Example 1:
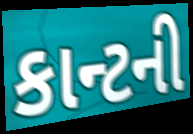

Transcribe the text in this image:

કાન્ટની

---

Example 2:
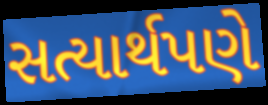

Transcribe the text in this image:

સત્યાર્થપણે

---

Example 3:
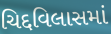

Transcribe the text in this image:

ચિદ્દવિલાસમાં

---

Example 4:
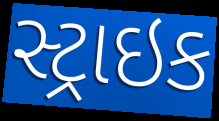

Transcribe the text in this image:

સ્ટ્રાઇક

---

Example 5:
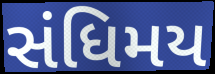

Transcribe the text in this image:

સંધિમય